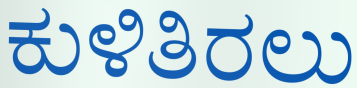
ಕುಳಿತಿರಲು